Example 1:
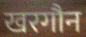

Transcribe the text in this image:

खरगौन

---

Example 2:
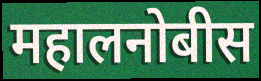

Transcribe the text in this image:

महालनोबीस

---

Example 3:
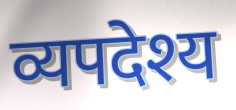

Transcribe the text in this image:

व्यपदेश्य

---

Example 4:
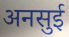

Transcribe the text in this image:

अनसुई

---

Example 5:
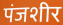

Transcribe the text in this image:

पंजशीर